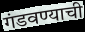
गंडवण्याची